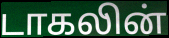
டாகலின்